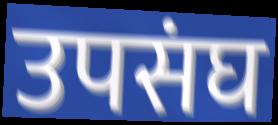
उपसंघ